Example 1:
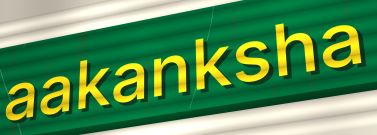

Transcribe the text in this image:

aakanksha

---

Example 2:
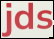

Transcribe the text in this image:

jds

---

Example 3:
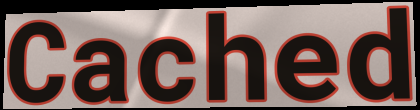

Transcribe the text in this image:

Cached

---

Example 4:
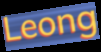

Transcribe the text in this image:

Leong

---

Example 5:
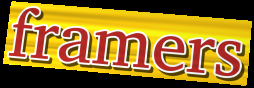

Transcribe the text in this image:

framers